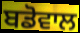
ਬਡੋਵਾਲ